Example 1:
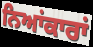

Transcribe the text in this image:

ਨਿਆਂਕਾਰਾਂ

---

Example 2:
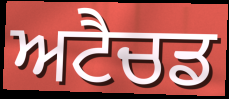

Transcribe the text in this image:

ਅਟੈਚਡ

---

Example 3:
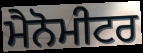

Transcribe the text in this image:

ਮੈਨੋਮੀਟਰ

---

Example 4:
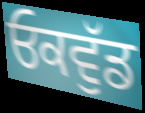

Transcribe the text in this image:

ਓਕਵੁੱਡ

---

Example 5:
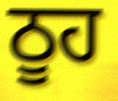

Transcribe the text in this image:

ਠੂਹ